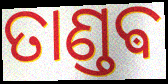
ତାଣ୍ଡଵ